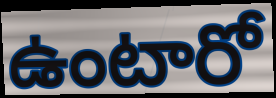
ఉంటారో